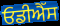
ਓਡੀਐੱਸ